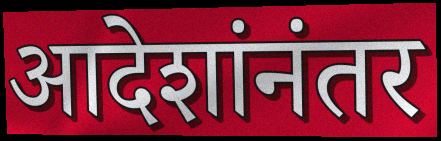
आदेशांनंतर